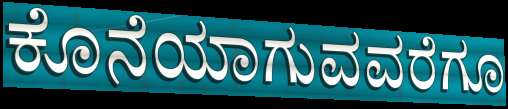
ಕೊನೆಯಾಗುವವರೆಗೂ